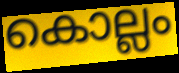
കൊല്ലം